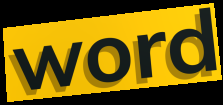
word